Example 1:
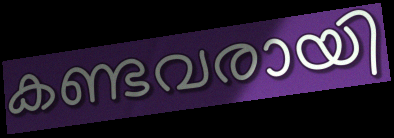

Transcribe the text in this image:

കണ്ടവരായി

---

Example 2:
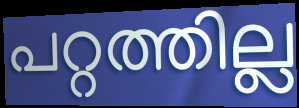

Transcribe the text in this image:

പറ്റത്തില്ല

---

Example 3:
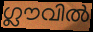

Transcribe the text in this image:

ഗ്ലൗവിൽ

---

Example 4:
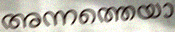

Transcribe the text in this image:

അന്നത്തെയാ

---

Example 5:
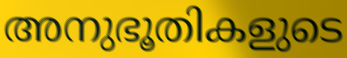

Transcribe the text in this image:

അനുഭൂതികളുടെ